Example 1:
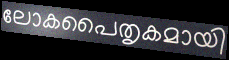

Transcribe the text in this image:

ലോകപൈതൃകമായി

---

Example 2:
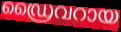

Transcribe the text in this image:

ഡ്രൈവറായ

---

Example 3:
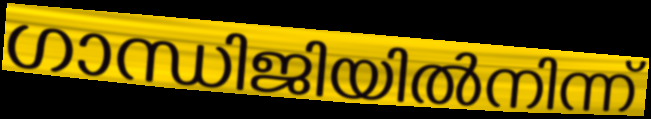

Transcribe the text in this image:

ഗാന്ധിജിയിൽനിന്ന്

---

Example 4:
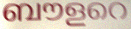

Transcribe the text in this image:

ബൗളറെ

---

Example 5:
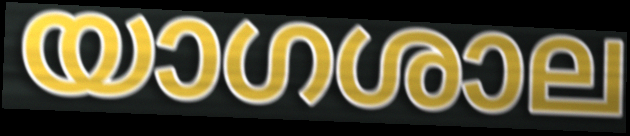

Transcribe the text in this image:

യാഗശാല